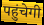
पहुंचेगी